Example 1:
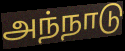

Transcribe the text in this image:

அந்நாடு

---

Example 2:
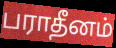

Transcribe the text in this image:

பராதீனம்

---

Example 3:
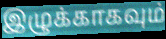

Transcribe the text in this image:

இழுக்காகவும்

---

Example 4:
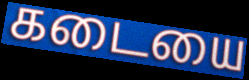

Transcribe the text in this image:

கடையை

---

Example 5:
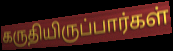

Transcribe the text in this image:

கருதியிருப்பார்கள்